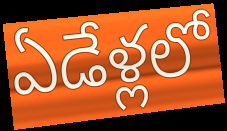
ఏడేళ్లలో